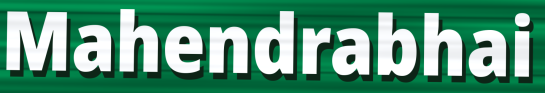
Mahendrabhai